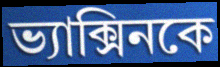
ভ্যাক্সিনকে